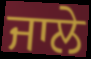
ਜਾਲੇ